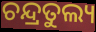
ଚନ୍ଦ୍ରତୁଲ୍ୟ